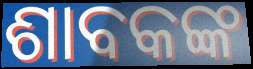
ଶାବକଙ୍କ